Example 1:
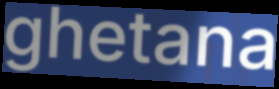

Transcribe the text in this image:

ghetana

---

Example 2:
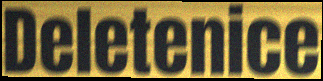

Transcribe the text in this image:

Deletenice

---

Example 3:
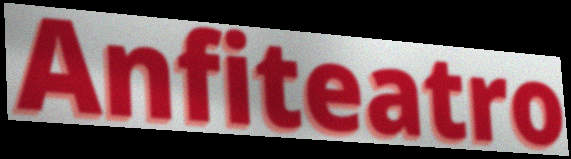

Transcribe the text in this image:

Anfiteatro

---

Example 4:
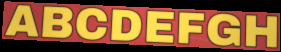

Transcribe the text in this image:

ABCDEFGH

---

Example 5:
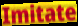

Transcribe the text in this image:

Imitate